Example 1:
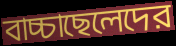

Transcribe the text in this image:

বাচ্চাছেলেদের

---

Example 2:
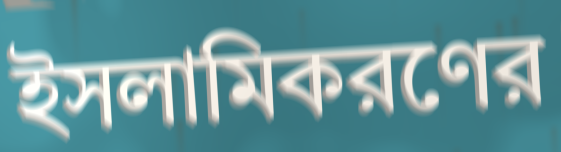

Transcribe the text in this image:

ইসলামিকরণের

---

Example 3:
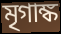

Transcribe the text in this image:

মৃগাঙ্ক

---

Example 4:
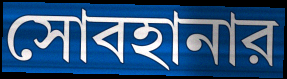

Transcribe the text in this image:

সোবহানার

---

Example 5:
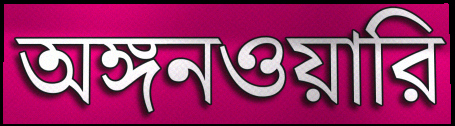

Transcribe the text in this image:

অঙ্গনওয়ারি